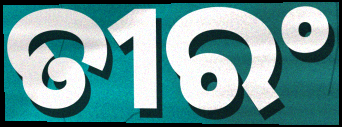
ତୀରଂ